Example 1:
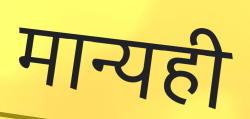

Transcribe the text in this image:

मान्यही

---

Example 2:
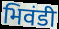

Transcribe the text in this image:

भिवंडी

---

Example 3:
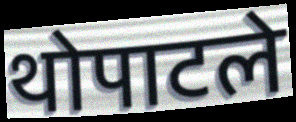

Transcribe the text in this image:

थोपाटले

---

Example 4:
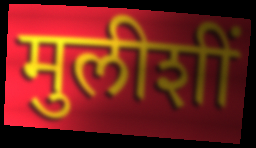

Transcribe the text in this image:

मुलीशीं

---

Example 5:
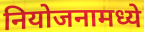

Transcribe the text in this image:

नियोजनामध्ये